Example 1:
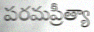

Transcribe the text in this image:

పరమప్రీత్యా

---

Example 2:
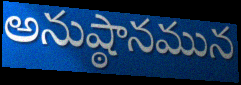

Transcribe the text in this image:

అనుష్ఠానమున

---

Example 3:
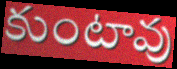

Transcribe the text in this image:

కుంటావు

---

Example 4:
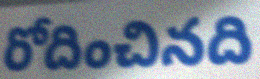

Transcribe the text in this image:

రోదించినది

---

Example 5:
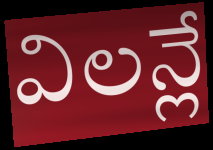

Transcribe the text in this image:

విలన్లే